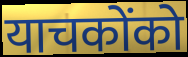
याचकोंको